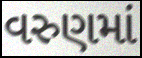
વરુણમાં